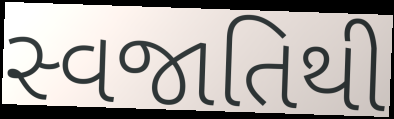
સ્વજાતિથી